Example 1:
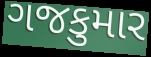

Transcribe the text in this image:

ગજકુમાર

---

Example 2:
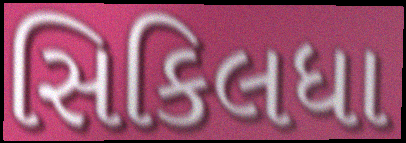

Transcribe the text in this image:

સિકિલધા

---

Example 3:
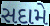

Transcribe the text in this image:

સદામે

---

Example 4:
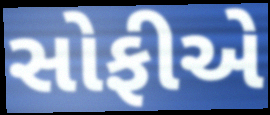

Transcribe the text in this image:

સોફીએ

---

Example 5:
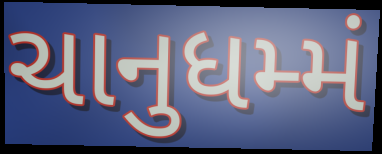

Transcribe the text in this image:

ચાનુધમ્મં